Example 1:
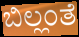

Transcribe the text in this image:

ಬಿಲ್ಲಂತೆ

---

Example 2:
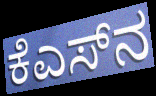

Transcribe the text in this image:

ಕೆಎಸ್‌ನ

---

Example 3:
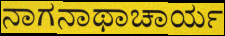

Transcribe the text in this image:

ನಾಗನಾಥಾಚಾರ್ಯ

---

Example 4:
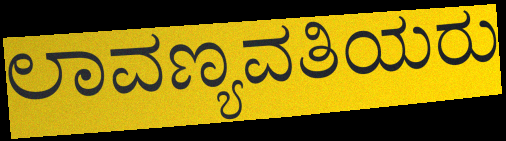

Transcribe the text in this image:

ಲಾವಣ್ಯವತಿಯರು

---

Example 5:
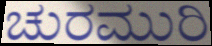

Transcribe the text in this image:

ಚುರಮುರಿ